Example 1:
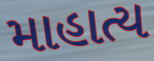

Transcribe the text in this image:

માહાત્ય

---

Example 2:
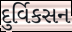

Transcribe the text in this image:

દુર્વિકસન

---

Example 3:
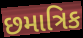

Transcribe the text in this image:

છમાત્રિક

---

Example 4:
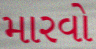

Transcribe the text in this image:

મારવો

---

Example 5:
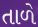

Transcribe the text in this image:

તાળે